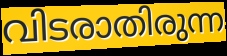
വിടരാതിരുന്ന